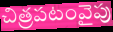
చిత్రపటంవైపు